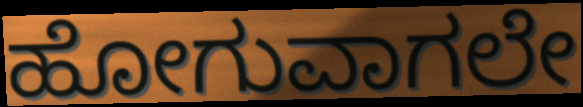
ಹೋಗುವಾಗಲೇ